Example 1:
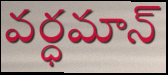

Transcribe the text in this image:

వర్ధమాన్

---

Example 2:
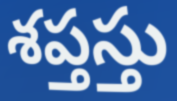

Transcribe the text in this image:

శప్తస్తు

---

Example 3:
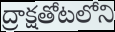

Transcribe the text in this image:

ద్రాక్షతోటలోని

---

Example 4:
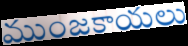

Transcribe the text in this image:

ముంజకాయలు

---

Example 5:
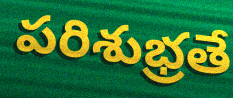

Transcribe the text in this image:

పరిశుభ్రతే